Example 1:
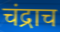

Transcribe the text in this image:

चंद्राच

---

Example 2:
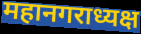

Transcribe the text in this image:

महानगराध्यक्ष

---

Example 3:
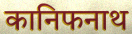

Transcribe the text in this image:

कानिफनाथ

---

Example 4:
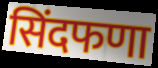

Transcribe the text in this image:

सिंदफणा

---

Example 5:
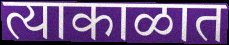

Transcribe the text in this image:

त्याकाळात